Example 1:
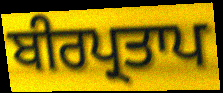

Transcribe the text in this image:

ਬੀਰਪ੍ਰਤਾਪ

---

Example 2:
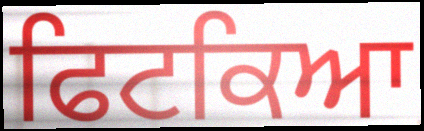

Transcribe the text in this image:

ਫਿਟਕਿਆ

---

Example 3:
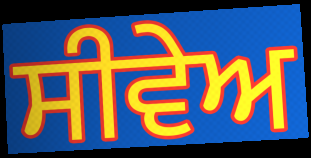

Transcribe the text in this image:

ਸੀਵੇਅ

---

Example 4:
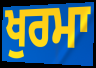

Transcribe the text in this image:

ਖੁਰਮਾ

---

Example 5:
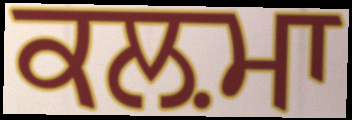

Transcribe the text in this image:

ਕਲ਼ਮਾ